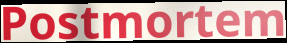
Postmortem